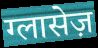
ग्लासेज़